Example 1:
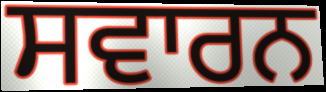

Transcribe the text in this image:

ਸਵਾਰਨ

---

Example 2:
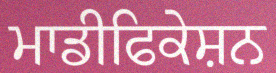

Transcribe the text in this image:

ਮਾਡੀਫਿਕੇਸ਼ਨ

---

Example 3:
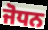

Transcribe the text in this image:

ਜੋਧਨ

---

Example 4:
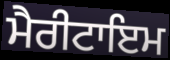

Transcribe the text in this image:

ਮੈਰੀਟਾਇਮ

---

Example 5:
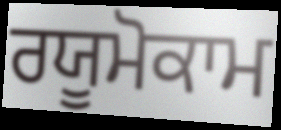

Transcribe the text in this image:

ਰਯੂਮੋਕਾਮ